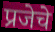
प्रजेचे